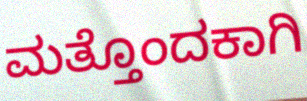
ಮತ್ತೊಂದಕಾಗಿ